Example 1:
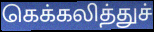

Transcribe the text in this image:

கெக்கலித்துச்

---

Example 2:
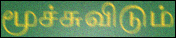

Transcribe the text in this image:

மூச்சுவிடும்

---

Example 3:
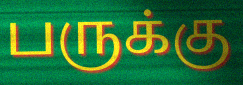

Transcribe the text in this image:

பருக்கு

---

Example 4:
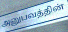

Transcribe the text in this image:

அனுபவத்தின்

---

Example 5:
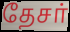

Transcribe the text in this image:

தேசர்